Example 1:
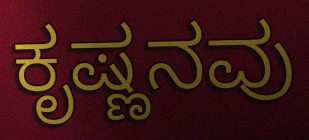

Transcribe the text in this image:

ಕೃಷ್ಣನವು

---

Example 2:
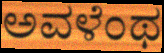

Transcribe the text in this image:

ಅವಳೆಂಥ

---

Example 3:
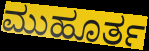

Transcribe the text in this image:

ಮುಹೂರ್ತ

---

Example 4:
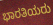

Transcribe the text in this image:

ಭಾರತಿಯರು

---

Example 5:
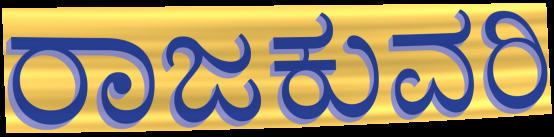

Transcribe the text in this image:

ರಾಜಕುವರಿ